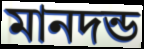
মানদন্ড